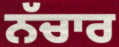
ਨੱਚਾਰ